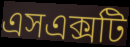
এসএক্সটি